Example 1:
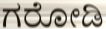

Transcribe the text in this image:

ಗರೋಡಿ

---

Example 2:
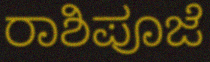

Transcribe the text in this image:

ರಾಶಿಪೂಜೆ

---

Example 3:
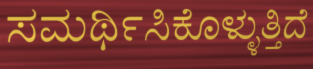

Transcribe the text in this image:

ಸಮರ್ಥಿಸಿಕೊಳ್ಳುತ್ತಿದೆ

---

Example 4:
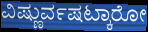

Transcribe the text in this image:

ವಿಷ್ಣುರ್ವಷಟ್ಕಾರೋ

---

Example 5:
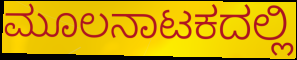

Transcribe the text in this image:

ಮೂಲನಾಟಕದಲ್ಲಿ